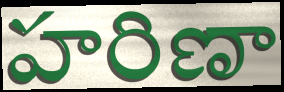
హరిణా